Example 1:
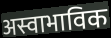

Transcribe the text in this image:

अस्वाभाविक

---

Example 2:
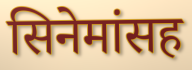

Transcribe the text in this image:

सिनेमांसह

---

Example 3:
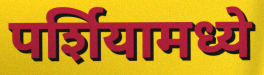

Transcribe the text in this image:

पर्शियामध्ये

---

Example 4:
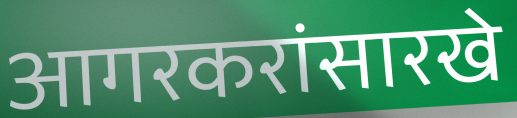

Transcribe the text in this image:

आगरकरांसारखे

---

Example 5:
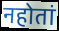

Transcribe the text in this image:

नहोतां